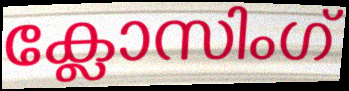
ക്ലോസിംഗ്